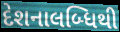
દેશનાલબ્ધિથી